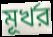
মূর্খর